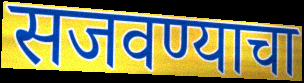
सजवण्याचा